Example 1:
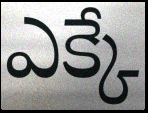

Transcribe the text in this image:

ఎక్కే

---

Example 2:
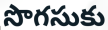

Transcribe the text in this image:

సొగసుకు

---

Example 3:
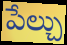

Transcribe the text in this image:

పేల్చు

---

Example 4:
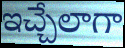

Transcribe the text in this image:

ఇచ్చేలాగా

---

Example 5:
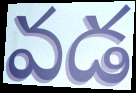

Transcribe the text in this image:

వడ